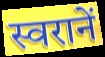
स्वरानें